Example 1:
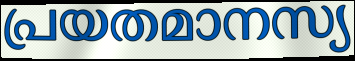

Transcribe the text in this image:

പ്രയതമാനസ്യ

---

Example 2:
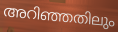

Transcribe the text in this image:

അറിഞ്ഞതിലും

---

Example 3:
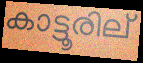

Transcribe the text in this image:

കാട്ടൂരില്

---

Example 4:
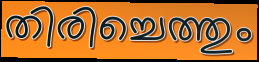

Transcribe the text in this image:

തിരിച്ചെത്തും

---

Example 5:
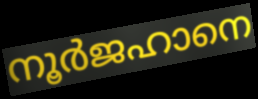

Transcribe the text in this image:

നൂർജഹാനെ